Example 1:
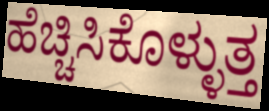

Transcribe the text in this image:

ಹೆಚ್ಚಿಸಿಕೊಳ್ಳುತ್ತ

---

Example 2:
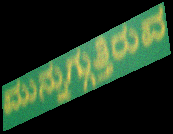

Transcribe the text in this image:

ಮುನ್ನುಗ್ಗುತ್ತಿರುವ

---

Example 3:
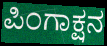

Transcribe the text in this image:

ಪಿಂಗಾಕ್ಷನ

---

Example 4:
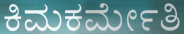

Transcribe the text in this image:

ಕಿಮಕರ್ಮೇತಿ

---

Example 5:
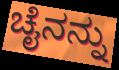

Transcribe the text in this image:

ಚೈನನ್ನು